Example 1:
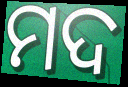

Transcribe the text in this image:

ମଦ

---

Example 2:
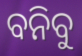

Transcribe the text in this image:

ବନିବୁ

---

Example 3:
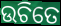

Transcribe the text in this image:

ଉଚିତେ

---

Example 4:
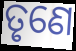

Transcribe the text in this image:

ତୃଣେ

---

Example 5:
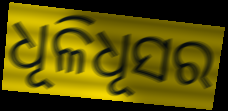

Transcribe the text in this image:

ଧୂଳିଧୂସର